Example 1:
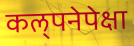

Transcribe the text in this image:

कल्पनेपेक्षा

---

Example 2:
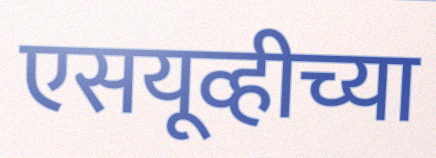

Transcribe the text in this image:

एसयूव्हीच्या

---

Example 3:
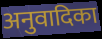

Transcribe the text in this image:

अनुवादिका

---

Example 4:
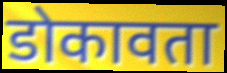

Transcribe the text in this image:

डोकावता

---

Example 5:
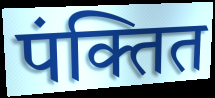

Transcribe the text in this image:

पंक्तित